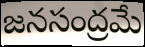
జనసంద్రమే